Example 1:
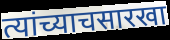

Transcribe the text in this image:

त्यांच्याचसारखा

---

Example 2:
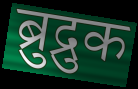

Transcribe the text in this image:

ब्रुद्रुक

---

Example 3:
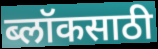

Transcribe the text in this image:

ब्लॉकसाठी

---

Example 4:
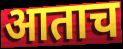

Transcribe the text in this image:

आताच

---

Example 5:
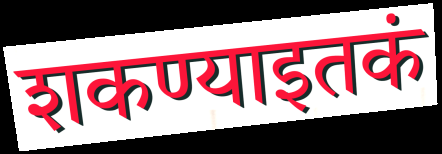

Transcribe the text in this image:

शकण्याइतकं